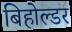
बिहोल्डर